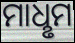
ମାଧୢମ